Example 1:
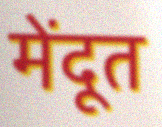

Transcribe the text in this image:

मेंदूत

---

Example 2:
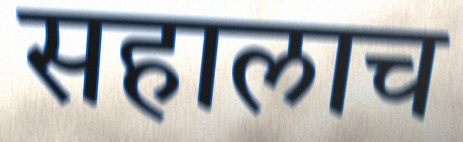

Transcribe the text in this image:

सहालाच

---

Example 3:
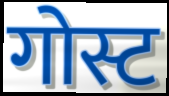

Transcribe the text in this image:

गोस्ट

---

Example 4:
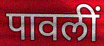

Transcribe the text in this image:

पावलीं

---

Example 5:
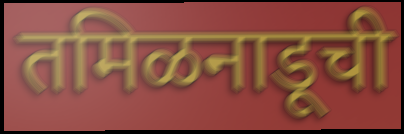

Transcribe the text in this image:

तमिळनाडूची